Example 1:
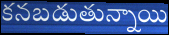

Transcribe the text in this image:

కనబడుతున్నాయి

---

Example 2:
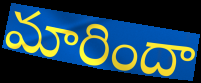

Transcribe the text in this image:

మారిందా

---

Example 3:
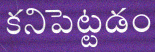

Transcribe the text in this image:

కనిపెట్టడం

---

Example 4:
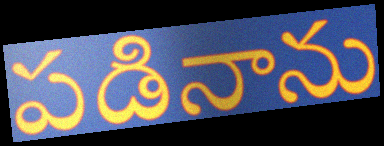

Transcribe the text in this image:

పడినాను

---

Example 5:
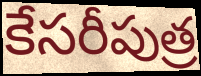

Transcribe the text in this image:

కేసరీపుత్ర